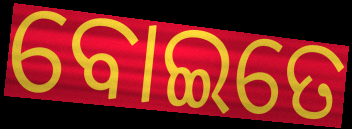
ବୋଇତେ